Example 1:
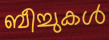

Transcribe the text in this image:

ബീച്ചുകൾ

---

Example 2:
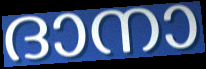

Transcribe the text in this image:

ദാനാ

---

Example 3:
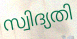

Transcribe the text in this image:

സ്വിദ്യതി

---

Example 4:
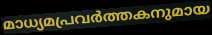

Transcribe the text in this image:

മാധ്യമപ്രവർത്തകനുമായ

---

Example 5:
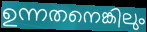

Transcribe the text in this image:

ഉന്നതനെങ്കിലും